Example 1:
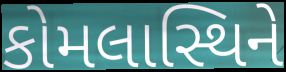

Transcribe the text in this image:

કોમલાસ્થિને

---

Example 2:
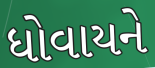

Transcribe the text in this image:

ધોવાયને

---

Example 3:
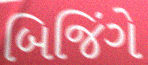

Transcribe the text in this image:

બિજિંગે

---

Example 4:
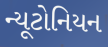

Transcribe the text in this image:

ન્યૂટોનિયન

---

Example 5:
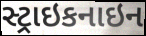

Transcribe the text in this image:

સ્ટ્રાઇકનાઇન